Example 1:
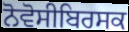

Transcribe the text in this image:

ਨੋਵੋਸੀਬਿਰਸਕ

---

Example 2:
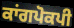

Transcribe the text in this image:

ਕਾਂਗਪੋਕਪੀ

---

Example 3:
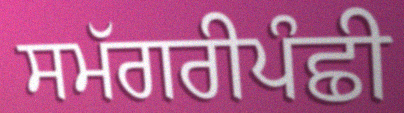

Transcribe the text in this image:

ਸਮੱਗਰੀਪੰਛੀ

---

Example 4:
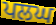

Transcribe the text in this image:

ਪਲਘ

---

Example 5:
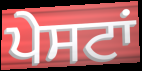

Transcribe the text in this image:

ਪੇਸਟਾਂ